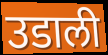
उडाली